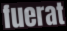
fuerat